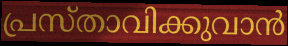
പ്രസ്താവിക്കുവാൻ